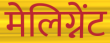
मेलिग्नेंट